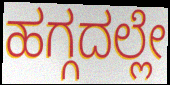
ಹಗ್ಗದಲ್ಲೇ